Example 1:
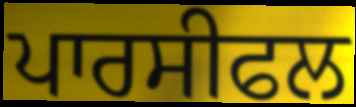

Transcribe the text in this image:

ਪਾਰਸੀਫਲ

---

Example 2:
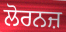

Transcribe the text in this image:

ਲੋਰਨਜ਼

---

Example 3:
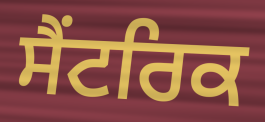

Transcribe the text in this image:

ਸੈਂਟਰਿਕ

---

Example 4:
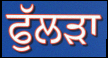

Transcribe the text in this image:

ਫੁੱਲੜਾ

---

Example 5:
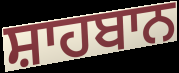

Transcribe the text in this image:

ਸ਼ਾਹਬਾਨ